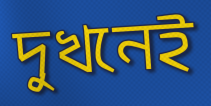
দুখনেই